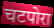
चटपोरा